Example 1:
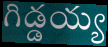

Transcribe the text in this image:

గిడ్డయ్య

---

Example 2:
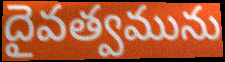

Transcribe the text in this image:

దైవత్వమును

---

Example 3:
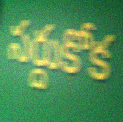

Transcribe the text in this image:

సర్దుకోక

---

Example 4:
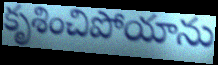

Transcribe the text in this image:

కృశించిపోయాను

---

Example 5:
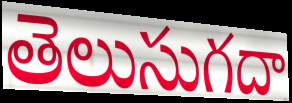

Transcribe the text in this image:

తెలుసుగదా